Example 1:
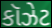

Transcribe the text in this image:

કૉઝેટ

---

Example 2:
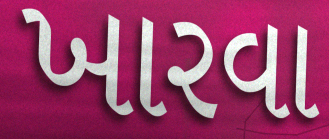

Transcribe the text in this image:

ખારવા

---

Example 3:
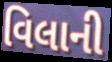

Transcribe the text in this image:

વિલાની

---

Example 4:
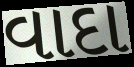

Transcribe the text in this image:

વાદા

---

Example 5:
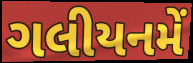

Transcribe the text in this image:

ગલીયનમેં